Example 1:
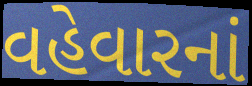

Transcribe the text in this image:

વહેવારનાં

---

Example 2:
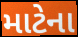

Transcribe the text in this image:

માટેના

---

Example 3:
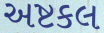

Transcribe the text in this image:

અષ્ટકલ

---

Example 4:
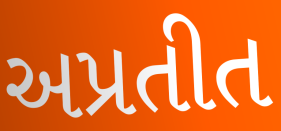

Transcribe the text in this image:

અપ્રતીત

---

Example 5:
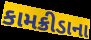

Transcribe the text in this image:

કામક્રીડાના